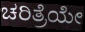
ಚರಿತ್ರೆಯೇ